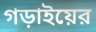
গড়াইয়ের